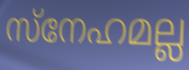
സ്നേഹമല്ല